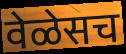
वेळेसच